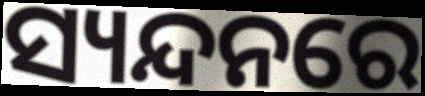
ସ୍ୟନ୍ଦନରେ